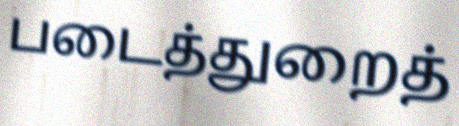
படைத்துறைத்